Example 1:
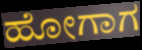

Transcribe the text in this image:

ಹೋಗಾಗ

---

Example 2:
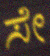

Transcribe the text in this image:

ಸೇ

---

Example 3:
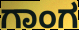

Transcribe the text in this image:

ಗಾಂಗ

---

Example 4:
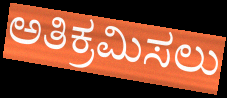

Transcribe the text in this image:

ಅತಿಕ್ರಮಿಸಲು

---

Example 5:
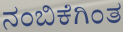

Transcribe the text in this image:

ನಂಬಿಕೆಗಿಂತ